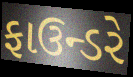
ફાઉન્ડરે